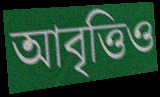
আবৃত্তিও